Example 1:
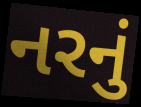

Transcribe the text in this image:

નરનું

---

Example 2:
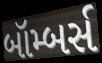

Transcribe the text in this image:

બૉમ્બર્સ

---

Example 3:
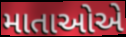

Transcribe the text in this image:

માતાઓએ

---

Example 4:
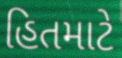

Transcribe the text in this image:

હિતમાટે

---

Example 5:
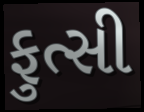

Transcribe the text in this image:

ફુત્સી